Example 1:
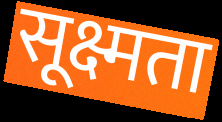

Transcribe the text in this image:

सूक्ष्मता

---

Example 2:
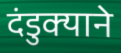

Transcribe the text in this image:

दंडुक्याने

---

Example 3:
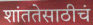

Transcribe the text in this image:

शांततेसाठीचं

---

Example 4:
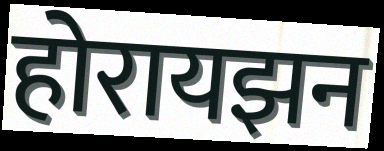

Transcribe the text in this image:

होरायझन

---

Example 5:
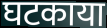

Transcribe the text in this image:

घटकाया